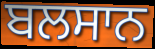
ਬਲਸਾਨ